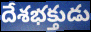
దేశభక్తుడు